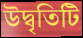
উদ্বৃতিটি